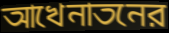
আখেনাতনের